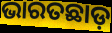
ଭାରତଛାଡ଼